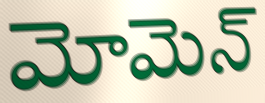
మోమెన్